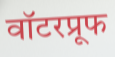
वॉटरप्रूफ